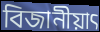
বিজানীয়াৎ